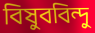
বিষুববিন্দু